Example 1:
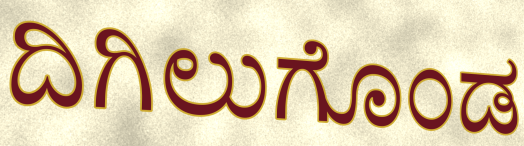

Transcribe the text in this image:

ದಿಗಿಲುಗೊಂಡ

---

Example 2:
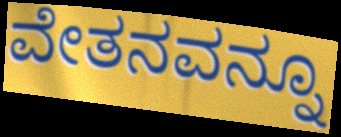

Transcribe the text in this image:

ವೇತನವನ್ನೂ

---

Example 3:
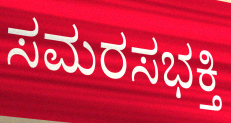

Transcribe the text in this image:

ಸಮರಸಭಕ್ತಿ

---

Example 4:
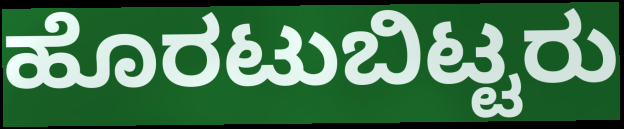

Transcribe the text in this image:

ಹೊರಟುಬಿಟ್ಟರು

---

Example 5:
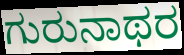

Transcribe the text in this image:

ಗುರುನಾಥರ